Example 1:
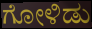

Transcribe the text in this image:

ಗೋಳಿಡು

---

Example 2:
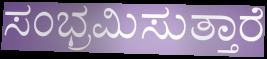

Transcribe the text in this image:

ಸಂಭ್ರಮಿಸುತ್ತಾರೆ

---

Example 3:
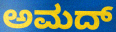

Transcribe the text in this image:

ಅಮದ್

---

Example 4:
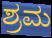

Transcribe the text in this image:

ಶ್ರಮ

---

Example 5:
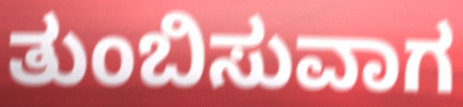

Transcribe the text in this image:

ತುಂಬಿಸುವಾಗ